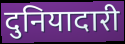
दुनियादारी